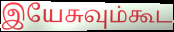
இயேசுவும்கூட